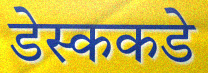
डेस्ककडे